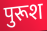
पुरूश